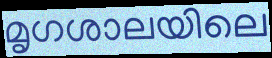
മൃഗശാലയിലെ